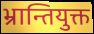
भ्रान्तियुक्त